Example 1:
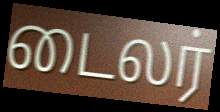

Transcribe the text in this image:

டைலர்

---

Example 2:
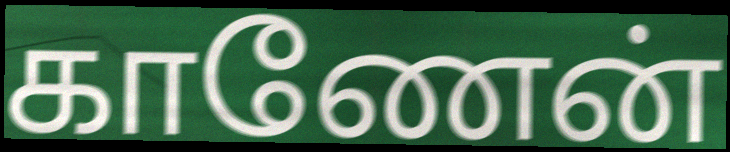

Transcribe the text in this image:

காணேன்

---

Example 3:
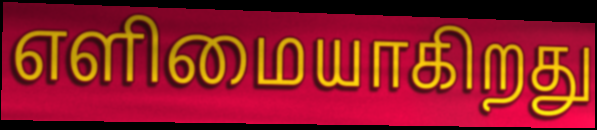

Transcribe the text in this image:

எளிமையாகிறது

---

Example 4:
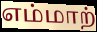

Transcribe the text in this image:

எம்மாற்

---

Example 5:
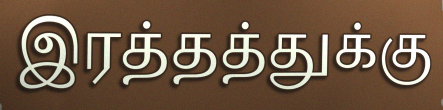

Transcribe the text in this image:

இரத்தத்துக்கு